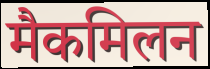
मैकमिलन